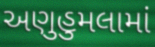
અણુહુમલામાં